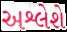
અશ્લેશે